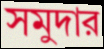
সমুদার